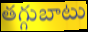
తగ్గుబాటు